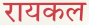
रायकल